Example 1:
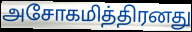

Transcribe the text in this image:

அசோகமித்திரனது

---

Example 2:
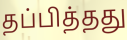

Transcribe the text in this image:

தப்பித்தது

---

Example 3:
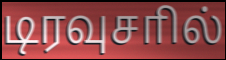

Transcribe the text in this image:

டிரவுசரில்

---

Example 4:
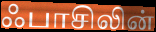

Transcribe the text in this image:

ஃபாசிலின்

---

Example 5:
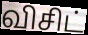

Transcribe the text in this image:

விசிட்